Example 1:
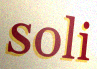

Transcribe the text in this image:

soli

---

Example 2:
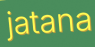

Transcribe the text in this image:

jatana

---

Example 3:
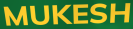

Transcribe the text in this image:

MUKESH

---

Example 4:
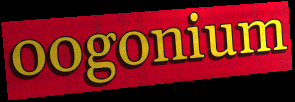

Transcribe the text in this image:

oogonium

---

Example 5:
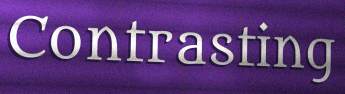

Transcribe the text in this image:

Contrasting